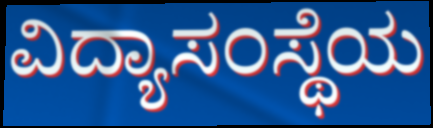
ವಿದ್ಯಾಸಂಸ್ಥೆಯ